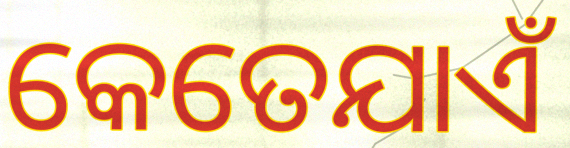
କେତେଯାଏଁ